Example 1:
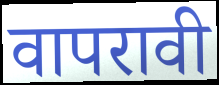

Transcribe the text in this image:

वापरावी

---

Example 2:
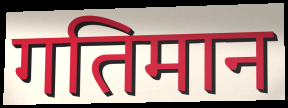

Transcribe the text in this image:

गतिमान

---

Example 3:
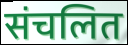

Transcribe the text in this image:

संचलित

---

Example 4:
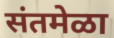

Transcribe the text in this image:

संतमेळा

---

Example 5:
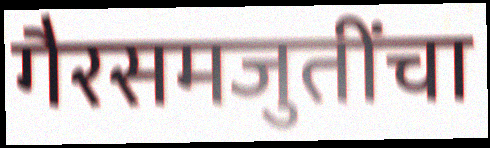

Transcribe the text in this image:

गैरसमजुतींचा